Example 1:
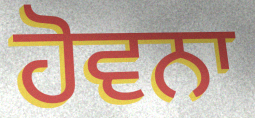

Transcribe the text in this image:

ਹੋਵਨਾ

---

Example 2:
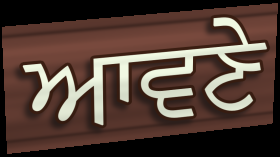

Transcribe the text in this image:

ਆਵਣੇ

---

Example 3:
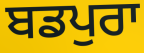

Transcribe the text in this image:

ਬਡਪੁਰਾ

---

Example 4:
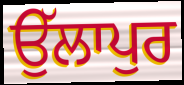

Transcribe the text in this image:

ਉੱਲਾਪੁਰ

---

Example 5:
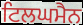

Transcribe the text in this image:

ਟਿਲਘਮੈਨ